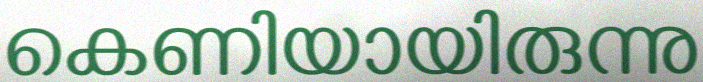
കെണിയായിരുന്നു